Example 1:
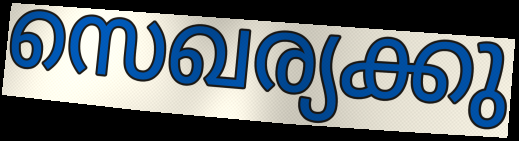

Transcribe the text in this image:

സെഖര്യക്കു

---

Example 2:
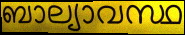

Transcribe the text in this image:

ബാല്യാവസ്ഥ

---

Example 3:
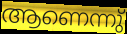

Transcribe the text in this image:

ആണെന്നു്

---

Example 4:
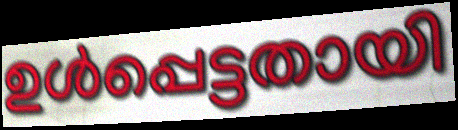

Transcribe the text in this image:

ഉൾപ്പെട്ടതായി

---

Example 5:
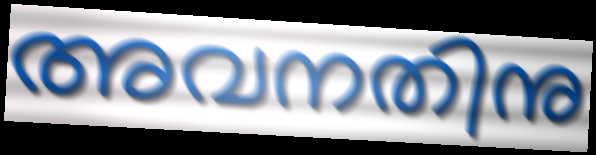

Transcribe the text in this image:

അവനതിനു